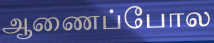
ஆணைப்போல